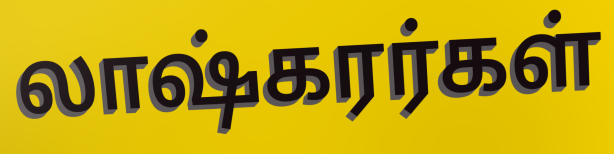
லாஷ்கரர்கள்